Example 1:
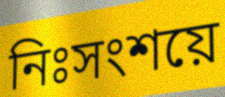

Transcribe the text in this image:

নিঃসংশয়ে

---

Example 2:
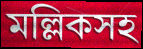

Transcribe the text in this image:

মল্লিকসহ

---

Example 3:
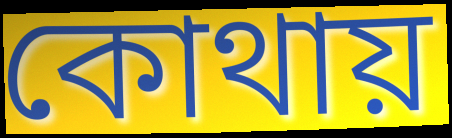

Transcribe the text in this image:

কোথায়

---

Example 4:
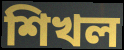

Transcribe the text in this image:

শিখল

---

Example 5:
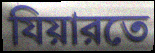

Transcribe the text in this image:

যিয়ারতে